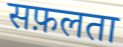
सफ़लता